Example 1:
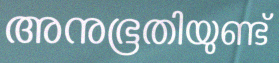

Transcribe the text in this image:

അനുഭൂതിയുണ്ട്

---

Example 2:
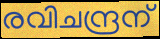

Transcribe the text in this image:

രവിചന്ദ്രന്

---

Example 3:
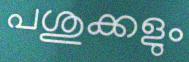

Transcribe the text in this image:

പശുക്കളും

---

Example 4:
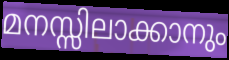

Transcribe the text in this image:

മനസ്സിലാക്കാനും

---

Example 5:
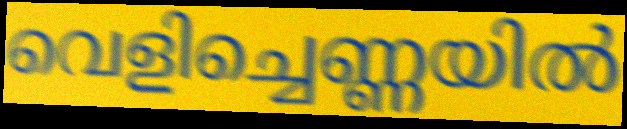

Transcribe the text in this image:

വെളിച്ചെണ്ണയിൽ